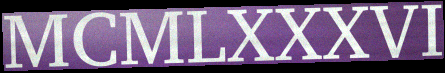
MCMLXXXVI